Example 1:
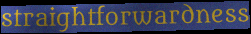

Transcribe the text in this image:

straightforwardness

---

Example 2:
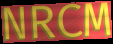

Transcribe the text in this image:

NRCM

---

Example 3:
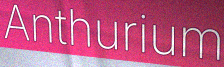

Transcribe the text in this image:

Anthurium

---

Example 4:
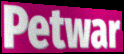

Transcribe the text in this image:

Petwar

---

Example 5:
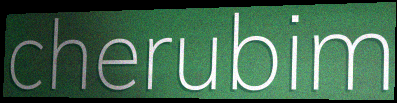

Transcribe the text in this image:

cherubim